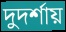
দুদর্শায়